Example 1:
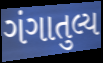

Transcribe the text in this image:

ગંગાતુલ્ય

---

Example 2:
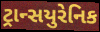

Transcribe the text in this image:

ટ્રાન્સયુરેનિક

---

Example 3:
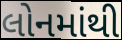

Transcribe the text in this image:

લોનમાંથી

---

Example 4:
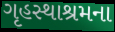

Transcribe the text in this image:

ગૃહસ્થાશ્રમના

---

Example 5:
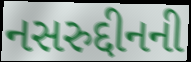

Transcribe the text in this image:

નસરુદ્દીનની